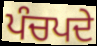
ਪੰਚਪਦੇ